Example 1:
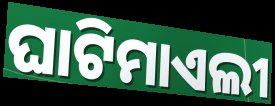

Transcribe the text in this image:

ଘାଟିମାଏଲୀ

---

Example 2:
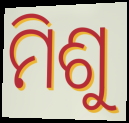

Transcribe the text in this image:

ମିଶୁ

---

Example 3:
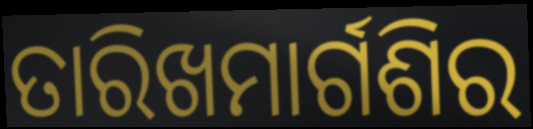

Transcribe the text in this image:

ତାରିଖମାର୍ଗଶିର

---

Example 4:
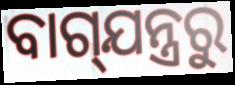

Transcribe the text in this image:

ବାଗ୍‌ଯନ୍ତ୍ରରୁ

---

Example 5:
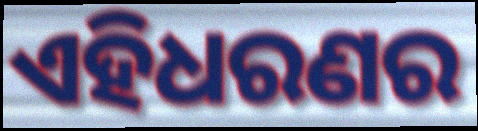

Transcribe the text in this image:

ଏହିଧରଣର